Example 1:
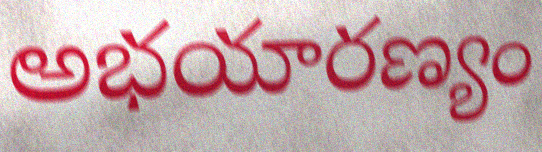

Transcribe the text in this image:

అభయారణ్యం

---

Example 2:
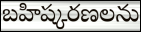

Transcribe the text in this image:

బహిష్కరణలను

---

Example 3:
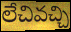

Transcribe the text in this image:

లేచివచ్చి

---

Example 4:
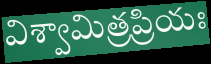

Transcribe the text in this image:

విశ్వామిత్రప్రియః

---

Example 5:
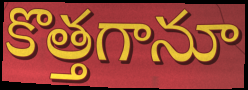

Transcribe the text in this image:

కొత్తగానూ